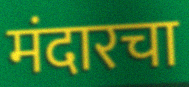
मंदारचा